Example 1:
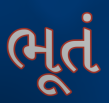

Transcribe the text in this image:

ભૂતં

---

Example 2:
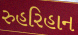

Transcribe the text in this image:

રુહરિહાન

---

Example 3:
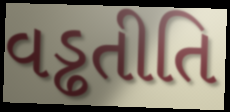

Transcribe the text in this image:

વડ્ઢતીતિ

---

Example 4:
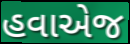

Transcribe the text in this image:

હવાએજ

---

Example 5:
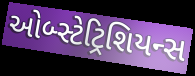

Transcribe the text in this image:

ઓબ્સ્ટેટ્રિશિયન્સ